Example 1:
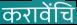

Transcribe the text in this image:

करावेंचि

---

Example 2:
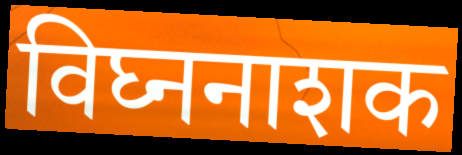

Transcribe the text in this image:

विघ्ननाशक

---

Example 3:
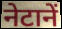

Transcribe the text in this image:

नेटानें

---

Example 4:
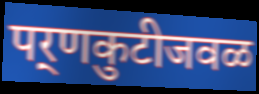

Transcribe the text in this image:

पर्णकुटीजवळ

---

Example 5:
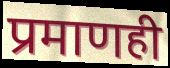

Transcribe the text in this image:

प्रमाणही